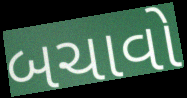
બચાવો